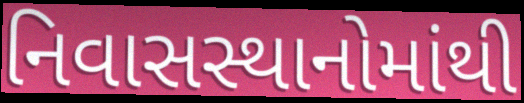
નિવાસસ્થાનોમાંથી